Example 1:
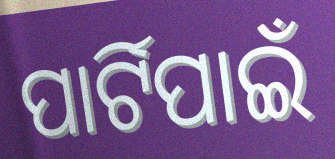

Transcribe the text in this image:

ପାର୍ଟିପାଇଁ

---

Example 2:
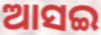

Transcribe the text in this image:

ଆସଇ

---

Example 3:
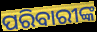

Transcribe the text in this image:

ପରିବାରୀଙ୍କ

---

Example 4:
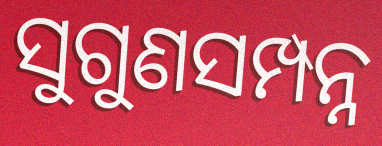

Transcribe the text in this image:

ସୁଗୁଣସମ୍ପନ୍ନ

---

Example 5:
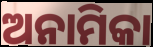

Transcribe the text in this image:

ଅନାମିକା